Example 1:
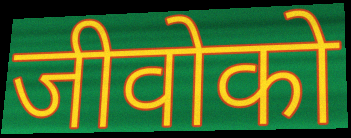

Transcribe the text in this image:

जीवोको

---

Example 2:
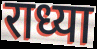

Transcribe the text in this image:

राध्या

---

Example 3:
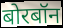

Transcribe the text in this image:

बोरबॉन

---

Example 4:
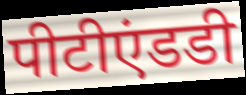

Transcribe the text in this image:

पीटीएंडडी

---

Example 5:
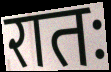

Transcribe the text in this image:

रातः